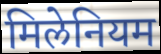
मिलेनियम